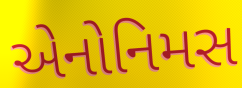
એનોનિમસ